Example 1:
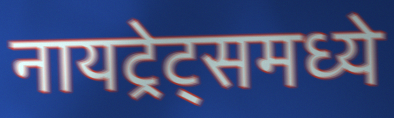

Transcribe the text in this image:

नायट्रेट्समध्ये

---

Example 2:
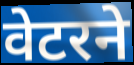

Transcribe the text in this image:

वेटरने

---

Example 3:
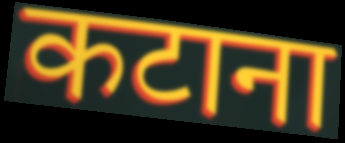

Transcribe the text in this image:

कटाना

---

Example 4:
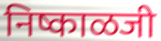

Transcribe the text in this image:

निष्काळजी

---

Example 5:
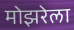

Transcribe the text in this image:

मोझरेला